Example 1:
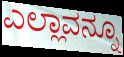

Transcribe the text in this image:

ಎಲ್ಲಾವನ್ನೂ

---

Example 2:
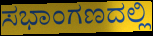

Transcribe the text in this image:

ಸಭಾಂಗಣದಲ್ಲಿ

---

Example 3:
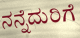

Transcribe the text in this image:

ನನ್ನೆದುರಿಗೆ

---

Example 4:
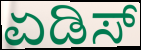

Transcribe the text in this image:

ಏಡಿಸ್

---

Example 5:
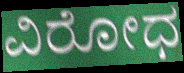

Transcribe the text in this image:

ವಿರೋಧ